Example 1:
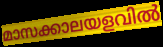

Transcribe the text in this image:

മാസക്കാലയളവിൽ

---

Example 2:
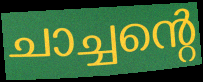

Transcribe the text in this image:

ചാച്ചന്റെ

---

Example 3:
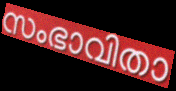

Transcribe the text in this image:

സംഭാവിതാ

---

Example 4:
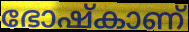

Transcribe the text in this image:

ഭോഷ്കാണ്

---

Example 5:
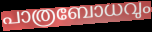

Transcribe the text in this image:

പാത്രബോധവും